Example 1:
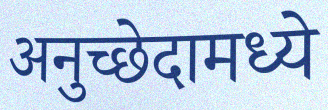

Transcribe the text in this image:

अनुच्छेदामध्ये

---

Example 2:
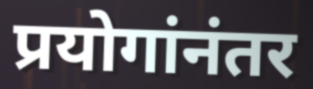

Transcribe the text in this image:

प्रयोगांनंतर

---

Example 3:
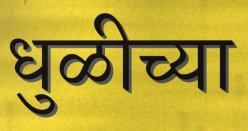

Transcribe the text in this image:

धुळीच्या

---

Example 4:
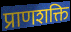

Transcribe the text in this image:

प्राणशक्ति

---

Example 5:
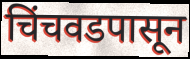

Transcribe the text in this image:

चिंचवडपासून